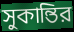
সুকান্তির